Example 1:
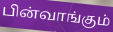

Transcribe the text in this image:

பின்வாங்கும்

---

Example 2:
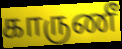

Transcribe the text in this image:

காருணீ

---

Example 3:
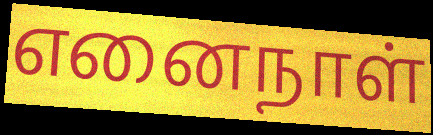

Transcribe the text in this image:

எனைநாள்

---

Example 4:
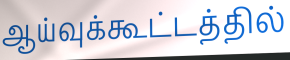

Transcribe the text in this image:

ஆய்வுக்கூட்டத்தில்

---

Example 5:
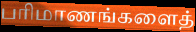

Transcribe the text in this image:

பரிமாணங்களைத்